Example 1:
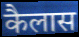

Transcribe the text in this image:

कैलास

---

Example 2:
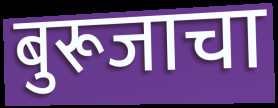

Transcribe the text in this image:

बुरूजाचा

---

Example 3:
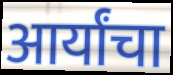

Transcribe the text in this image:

आर्यांचा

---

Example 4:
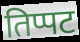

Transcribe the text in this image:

तिप्पट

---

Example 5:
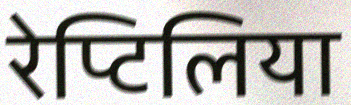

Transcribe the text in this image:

रेप्टिलिया